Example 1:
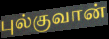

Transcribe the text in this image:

புல்குவான்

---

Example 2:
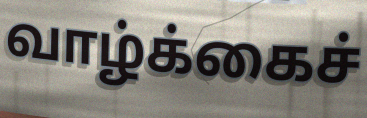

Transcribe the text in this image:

வாழ்க்கைச்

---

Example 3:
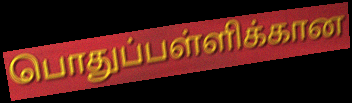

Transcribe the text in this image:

பொதுப்பள்ளிக்கான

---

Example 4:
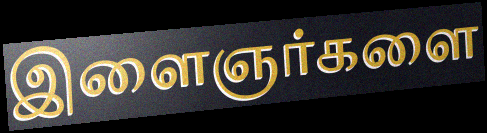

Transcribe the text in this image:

இளைஞர்களை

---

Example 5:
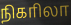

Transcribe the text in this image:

நிகரிலா